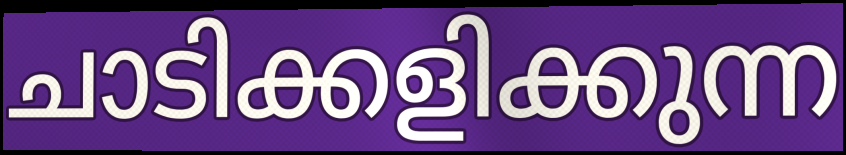
ചാടിക്കളിക്കുന്ന